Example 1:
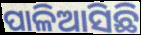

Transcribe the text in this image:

ପାଳିଆସିଛି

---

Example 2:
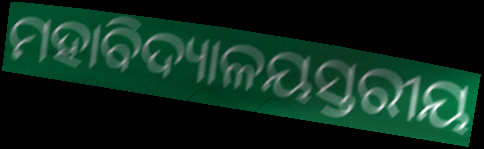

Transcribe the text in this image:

ମହାବିଦ୍ୟାଳୟସ୍ତରୀୟ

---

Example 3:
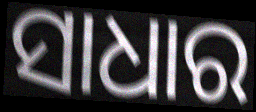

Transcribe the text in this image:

ସାଧାର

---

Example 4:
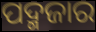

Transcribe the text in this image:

ପଦ୍ମଜାର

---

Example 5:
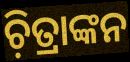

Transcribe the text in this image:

ଚ଼ିତ୍ରାଙ୍କନ